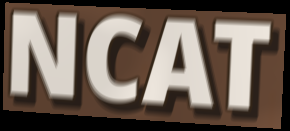
NCAT